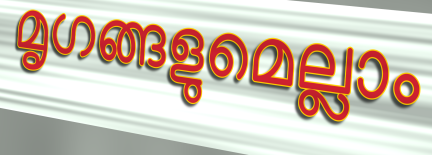
മൃഗങ്ങളുമെല്ലാം